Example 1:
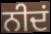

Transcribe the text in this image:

ਨੀਦਂ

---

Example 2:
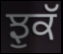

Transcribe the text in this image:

ਝੁਕੱ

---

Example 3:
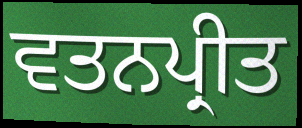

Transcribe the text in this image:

ਵਤਨਪ੍ਰੀਤ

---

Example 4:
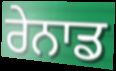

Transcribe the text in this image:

ਰੇਨਾਡ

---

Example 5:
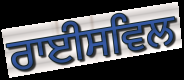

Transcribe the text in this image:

ਰਾਈਸਵਿਲ